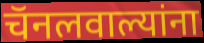
चॅनलवाल्यांना